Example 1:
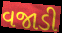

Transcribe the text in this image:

વજાડી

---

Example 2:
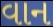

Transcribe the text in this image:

વાન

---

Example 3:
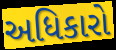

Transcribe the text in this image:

અધિકારો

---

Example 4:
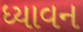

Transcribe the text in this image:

ધ્યાવન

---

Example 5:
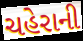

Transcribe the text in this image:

ચહેરાની